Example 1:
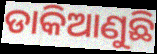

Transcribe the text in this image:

ଡାକିଆଣୁଛି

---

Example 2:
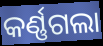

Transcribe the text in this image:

କର୍ଣ୍ଣଗଲା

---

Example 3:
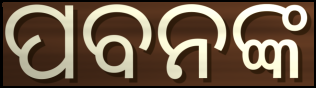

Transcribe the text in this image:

ପବନଙ୍କ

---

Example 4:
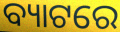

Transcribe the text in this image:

ବ୍ୟାଟରେ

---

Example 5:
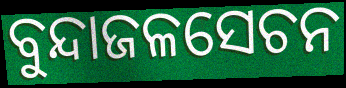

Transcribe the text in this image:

ବୁନ୍ଦାଜଳସେଚନ